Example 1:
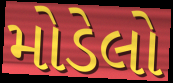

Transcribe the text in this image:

મોડેલો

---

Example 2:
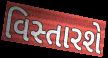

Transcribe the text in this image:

વિસ્તારશે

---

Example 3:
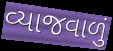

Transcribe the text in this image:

વ્યાજવાળું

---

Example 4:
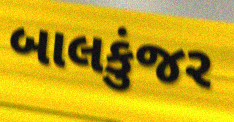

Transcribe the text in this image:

બાલકુંજર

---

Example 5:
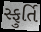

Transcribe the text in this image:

સ્ફુર્તિ